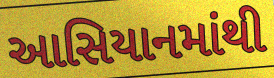
આસિયાનમાંથી